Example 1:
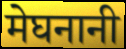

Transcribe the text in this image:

मेघनानी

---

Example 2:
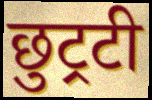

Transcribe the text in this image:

छुट्रटी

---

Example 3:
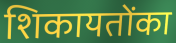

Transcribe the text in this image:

शिकायतोंका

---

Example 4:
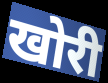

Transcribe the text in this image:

खोरी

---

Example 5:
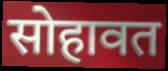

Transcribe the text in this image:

सोहावत